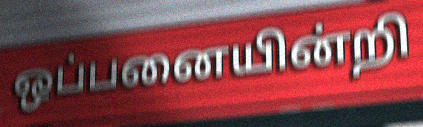
ஒப்பனையின்றி